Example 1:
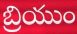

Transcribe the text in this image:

బ్రియుం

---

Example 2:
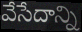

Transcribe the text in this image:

వేసేదాన్ని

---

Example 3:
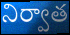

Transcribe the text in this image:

నిర్వాత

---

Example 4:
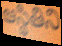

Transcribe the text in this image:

ఆస్థితిని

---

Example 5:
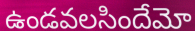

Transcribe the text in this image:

ఉండవలసిందేమో